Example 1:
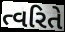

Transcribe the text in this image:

ત્વરિતે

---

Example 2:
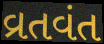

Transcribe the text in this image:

વ્રતવંત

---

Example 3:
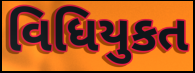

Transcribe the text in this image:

વિધિયુકત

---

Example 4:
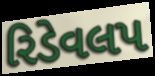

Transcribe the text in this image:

રિડેવલપ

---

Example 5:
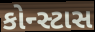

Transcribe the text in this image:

કોન્સ્ટાસ